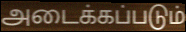
அடைக்கப்படும்